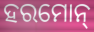
ହରମୋନ୍